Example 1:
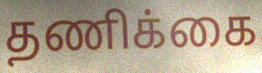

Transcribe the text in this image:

தணிக்கை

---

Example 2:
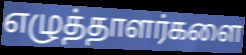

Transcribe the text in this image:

எழுத்தாளர்களை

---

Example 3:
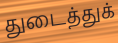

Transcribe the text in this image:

துடைத்துக்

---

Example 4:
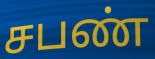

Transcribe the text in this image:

சபண்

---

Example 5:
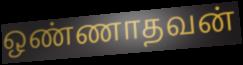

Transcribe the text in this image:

ஒண்ணாதவன்